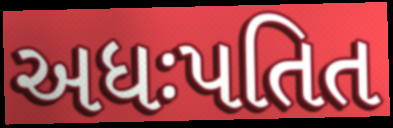
અધઃપતિત